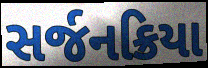
સર્જનક્રિયા